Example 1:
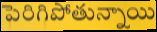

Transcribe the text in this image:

పెరిగిపోతున్నాయి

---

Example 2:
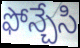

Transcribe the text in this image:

ఫోన్చేసి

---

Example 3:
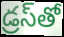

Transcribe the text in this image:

డ్రస్‌తో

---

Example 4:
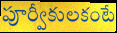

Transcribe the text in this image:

పూర్వీకులకంటే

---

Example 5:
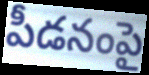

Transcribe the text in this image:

పీడనంపై